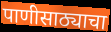
पाणीसाठ्याचा